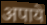
अपाये